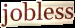
jobless